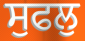
ਸੁਫਲੁ